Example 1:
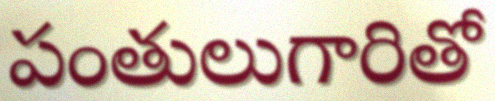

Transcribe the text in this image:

పంతులుగారితో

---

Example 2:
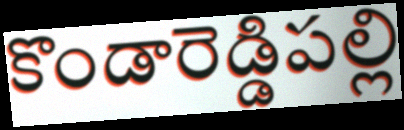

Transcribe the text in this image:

కొండారెడ్డిపల్లి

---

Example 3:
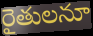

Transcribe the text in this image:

రైతులనూ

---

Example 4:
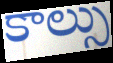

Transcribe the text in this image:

కాల్సు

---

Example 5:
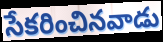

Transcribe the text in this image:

సేకరించినవాడు